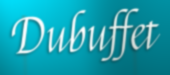
Dubuffet